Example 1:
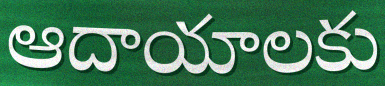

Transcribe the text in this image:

ఆదాయాలకు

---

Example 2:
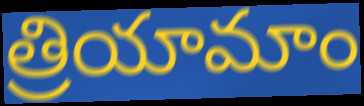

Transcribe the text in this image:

త్రియామాం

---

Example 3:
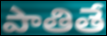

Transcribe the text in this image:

పాతితే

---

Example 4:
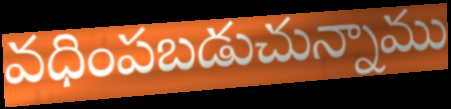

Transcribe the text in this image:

వధింపబడుచున్నాము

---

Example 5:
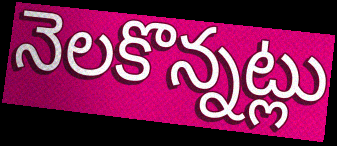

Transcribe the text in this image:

నెలకొన్నట్లు